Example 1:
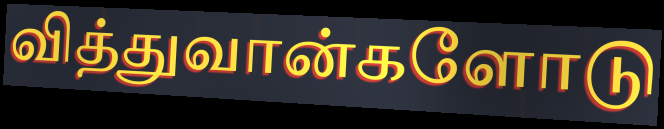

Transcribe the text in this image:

வித்துவான்களோடு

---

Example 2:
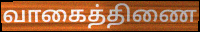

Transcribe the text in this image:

வாகைத்திணை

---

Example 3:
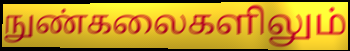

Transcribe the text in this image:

நுண்கலைகளிலும்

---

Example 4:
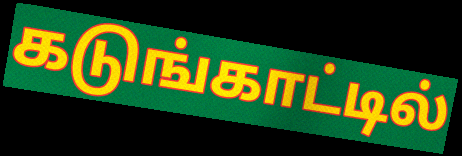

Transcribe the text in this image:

கடுங்காட்டில்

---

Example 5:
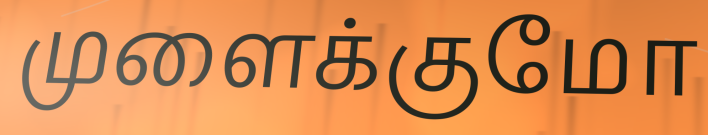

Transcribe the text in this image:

முளைக்குமோ